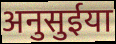
अनुसुईया